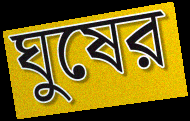
ঘুষের